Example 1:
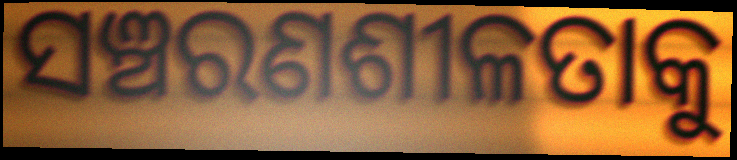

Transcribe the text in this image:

ସଞ୍ଚରଣଶୀଳତାକୁ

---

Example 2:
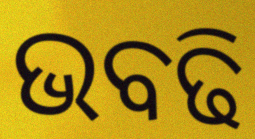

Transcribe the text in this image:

ଭବଢି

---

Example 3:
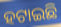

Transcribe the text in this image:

ହଟାଇଛି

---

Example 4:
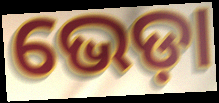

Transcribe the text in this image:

ଭେଡ଼ା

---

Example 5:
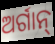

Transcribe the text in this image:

ଅର୍ଗାନ୍